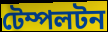
টেম্পলটন